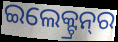
ଇଲେକ୍ଟ୍ରନ୍‌ର